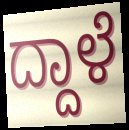
ದ್ದಾಳೆ